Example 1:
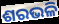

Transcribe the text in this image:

ଶରଭଳି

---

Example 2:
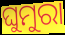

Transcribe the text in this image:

ଘୁମୁରା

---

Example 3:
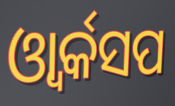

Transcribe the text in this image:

ଓ୍ୱାର୍କସପ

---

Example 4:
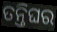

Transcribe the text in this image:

ତନ୍ତିଘର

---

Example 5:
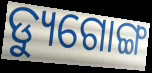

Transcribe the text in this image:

ଡ୍ୟୁଗୋଙ୍ଗ